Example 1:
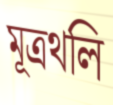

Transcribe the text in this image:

মূত্রথলি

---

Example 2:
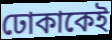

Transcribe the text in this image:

ঢোকাকেই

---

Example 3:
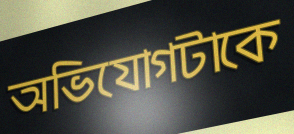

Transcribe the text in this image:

অভিযোগটাকে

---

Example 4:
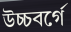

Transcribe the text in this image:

উচ্চবর্গে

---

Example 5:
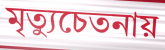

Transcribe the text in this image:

মৃত্যুচেতনায়